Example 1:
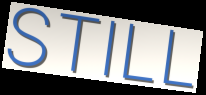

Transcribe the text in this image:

STILL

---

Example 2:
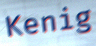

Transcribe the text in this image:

Kenig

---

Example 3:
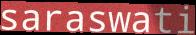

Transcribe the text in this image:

saraswati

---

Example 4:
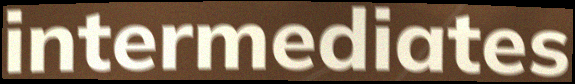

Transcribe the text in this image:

intermediates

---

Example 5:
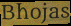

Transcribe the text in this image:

Bhojas